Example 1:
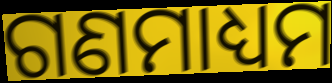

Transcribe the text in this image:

ଗଣମାଧ୍ୟମ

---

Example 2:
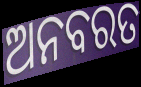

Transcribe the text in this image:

ଅନବରତ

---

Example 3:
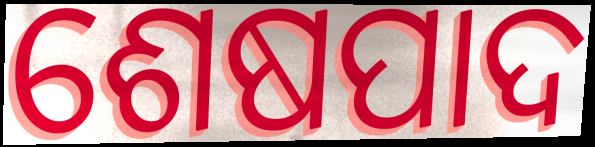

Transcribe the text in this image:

ଶେଷପାଦ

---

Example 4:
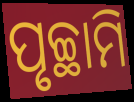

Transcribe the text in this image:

ପୃଚ୍ଛାମି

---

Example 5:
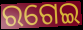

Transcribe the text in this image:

ରଗେଇ